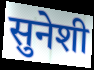
सुनेशी